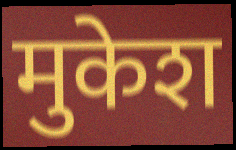
मुकेश